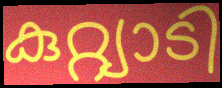
കുറ്റ്യാടി